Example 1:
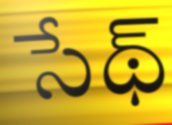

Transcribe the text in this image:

సేథ్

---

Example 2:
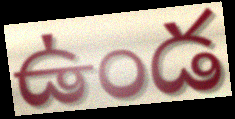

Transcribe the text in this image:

ఉండ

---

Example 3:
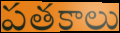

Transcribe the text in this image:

పతకాలు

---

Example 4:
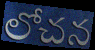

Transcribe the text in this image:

లోచన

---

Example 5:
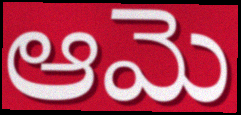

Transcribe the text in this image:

ఆమె